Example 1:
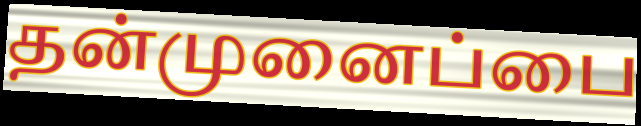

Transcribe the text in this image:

தன்முனைப்பை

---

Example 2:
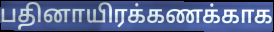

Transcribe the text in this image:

பதினாயிரக்கணக்காக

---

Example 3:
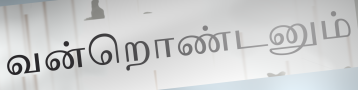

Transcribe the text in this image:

வன்றொண்டனும்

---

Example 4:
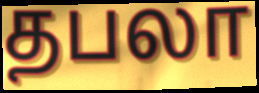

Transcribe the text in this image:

தபலா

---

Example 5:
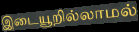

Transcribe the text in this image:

இடையூறில்லாமல்